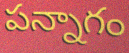
పన్నాగం